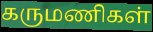
கருமணிகள்